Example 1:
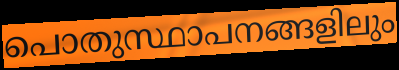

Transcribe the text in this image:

പൊതുസ്ഥാപനങ്ങളിലും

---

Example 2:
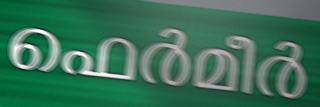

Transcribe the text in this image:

ഫെർമീർ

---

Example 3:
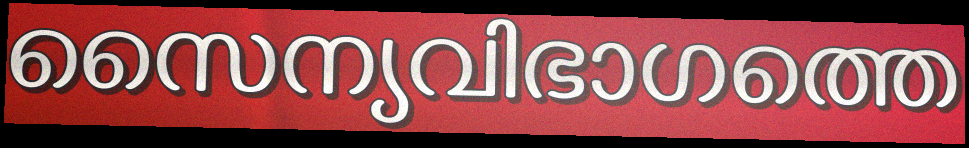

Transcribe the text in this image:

സൈന്യവിഭാഗത്തെ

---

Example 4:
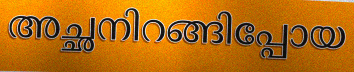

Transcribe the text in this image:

അച്ഛനിറങ്ങിപ്പോയ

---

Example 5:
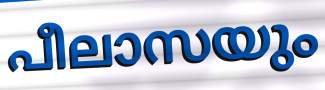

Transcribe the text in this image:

പീലാസയും